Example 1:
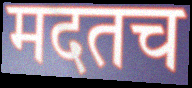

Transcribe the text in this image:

मदतच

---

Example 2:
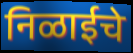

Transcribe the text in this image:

निळाईचे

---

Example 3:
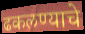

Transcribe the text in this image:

ढकलण्याचे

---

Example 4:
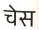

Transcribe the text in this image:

चेस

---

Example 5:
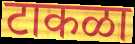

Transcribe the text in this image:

टाकळा